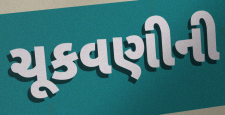
ચૂકવણીની